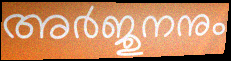
അർജുനനും